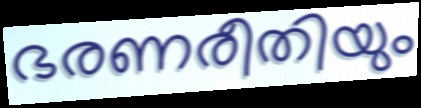
ഭരണരീതിയും